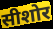
सीशोर